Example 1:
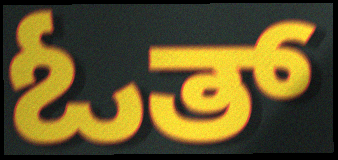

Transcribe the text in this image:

ಓತ್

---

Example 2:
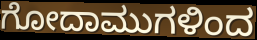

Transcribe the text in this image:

ಗೋದಾಮುಗಳಿಂದ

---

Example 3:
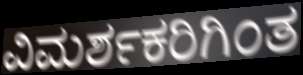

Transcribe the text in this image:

ವಿಮರ್ಶಕರಿಗಿಂತ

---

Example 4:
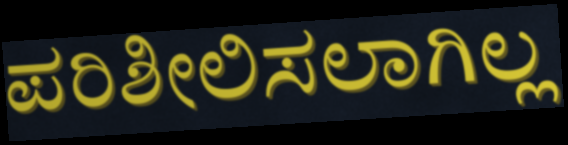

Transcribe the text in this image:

ಪರಿಶೀಲಿಸಲಾಗಿಲ್ಲ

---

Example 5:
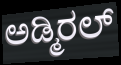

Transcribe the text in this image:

ಅಡ್ಮಿರಲ್